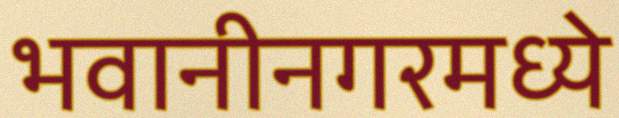
भवानीनगरमध्ये